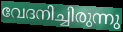
വേദനിച്ചിരുന്നു